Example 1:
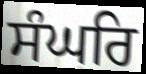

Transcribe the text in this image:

ਸੰਘਰਿ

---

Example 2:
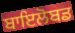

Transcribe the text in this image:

ਬਾਇਲੋਬਡ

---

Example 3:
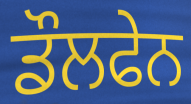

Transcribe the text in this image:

ਡੌਲਫੇਨ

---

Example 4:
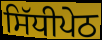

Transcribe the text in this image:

ਸਿੱਧੀਪੇਠ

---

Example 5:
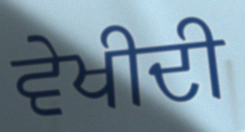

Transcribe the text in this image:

ਵੇਖੀਦੀ